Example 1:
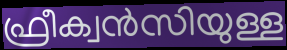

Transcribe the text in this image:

ഫ്രീക്വൻസിയുള്ള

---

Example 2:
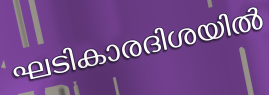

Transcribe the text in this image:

ഘടികാരദിശയിൽ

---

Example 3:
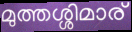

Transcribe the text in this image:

മുത്തശ്ശിമാര്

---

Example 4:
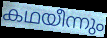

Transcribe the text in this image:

കഥയീന്നും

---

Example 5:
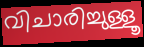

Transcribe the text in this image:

വിചാരിച്ചുള്ളൂ